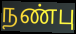
நண்பு